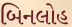
બિનલોહ